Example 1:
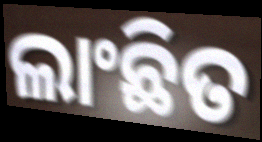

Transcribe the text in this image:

ଲାଂଛିତ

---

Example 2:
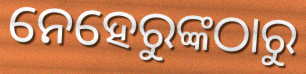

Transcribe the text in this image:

ନେହେରୁଙ୍କଠାରୁ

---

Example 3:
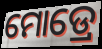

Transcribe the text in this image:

ମୋଡ୍ରେ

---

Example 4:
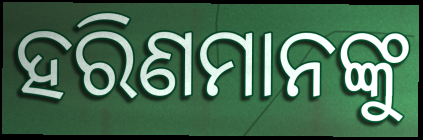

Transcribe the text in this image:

ହରିଣମାନଙ୍କୁ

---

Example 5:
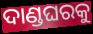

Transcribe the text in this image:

ଦାଣ୍ଡଘରକୁ